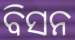
ବିସନ